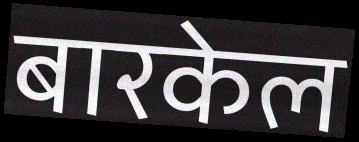
बारकेल